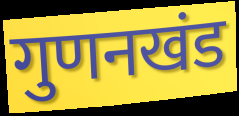
गुणनखंड